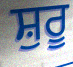
ਸ਼ੁਰੂ